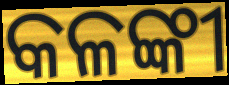
କଳଙ୍କୀ